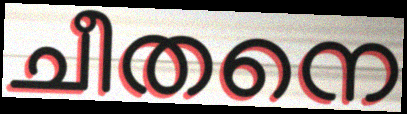
ചീതനെ